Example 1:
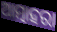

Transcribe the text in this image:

ଆତ୍ମାହରା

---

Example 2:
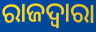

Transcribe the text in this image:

ରାଜଦ୍ୱାରା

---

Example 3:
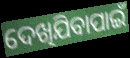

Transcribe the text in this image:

ଦେଖିଯିବାପାଇଁ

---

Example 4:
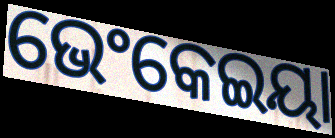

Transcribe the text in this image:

ଭେଂକେଇୟା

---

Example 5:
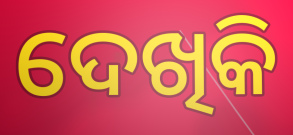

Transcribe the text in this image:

ଦେଖିକି